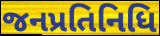
જનપ્રતિનિધિ